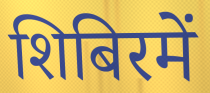
शिबिरमें